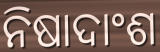
ନିଷାଦାଂଶ